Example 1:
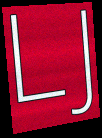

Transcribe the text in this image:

LJ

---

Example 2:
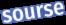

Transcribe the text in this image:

sourse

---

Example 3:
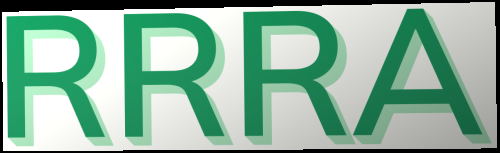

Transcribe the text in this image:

RRRA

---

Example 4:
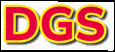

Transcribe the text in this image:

DGS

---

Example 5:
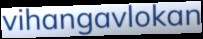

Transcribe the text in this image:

vihangavlokan